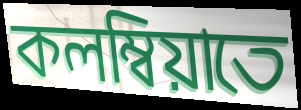
কলম্বিয়াতে